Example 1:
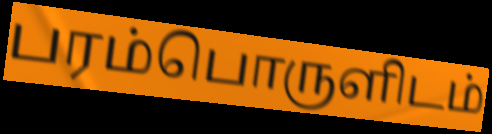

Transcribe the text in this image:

பரம்பொருளிடம்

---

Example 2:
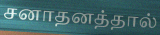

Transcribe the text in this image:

சனாதனத்தால்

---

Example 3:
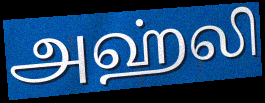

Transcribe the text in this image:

அஹ்லி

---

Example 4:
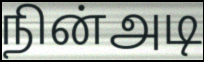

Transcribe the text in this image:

நின்அடி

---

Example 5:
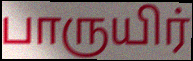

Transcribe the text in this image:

பாருயிர்